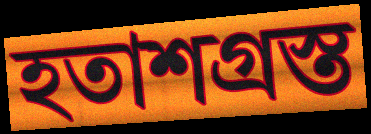
হতাশগ্ৰস্ত